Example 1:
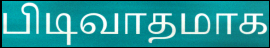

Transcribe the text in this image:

பிடிவாதமாக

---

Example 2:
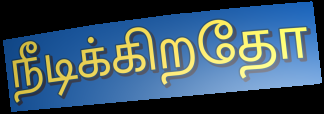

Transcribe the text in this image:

நீடிக்கிறதோ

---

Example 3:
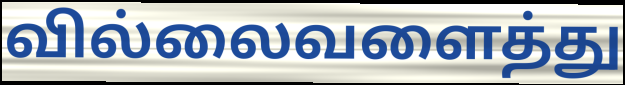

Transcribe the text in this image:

வில்லைவளைத்து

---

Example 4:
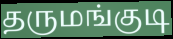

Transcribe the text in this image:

தருமங்குடி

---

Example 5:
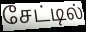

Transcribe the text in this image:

சேட்டில்